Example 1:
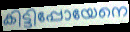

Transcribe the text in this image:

കിട്ടിപ്പോയേനെ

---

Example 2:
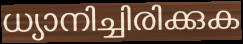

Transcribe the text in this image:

ധ്യാനിച്ചിരിക്കുക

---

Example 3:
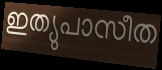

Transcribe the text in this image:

ഇത്യുപാസീത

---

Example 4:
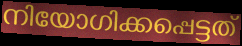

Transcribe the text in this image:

നിയോഗിക്കപ്പെട്ടത്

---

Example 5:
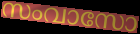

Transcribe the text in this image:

സംവാസോ